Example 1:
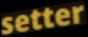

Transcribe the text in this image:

setter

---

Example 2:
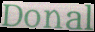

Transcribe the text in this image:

Donal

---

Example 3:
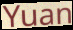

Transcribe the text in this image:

Yuan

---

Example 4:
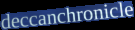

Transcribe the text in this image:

deccanchronicle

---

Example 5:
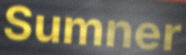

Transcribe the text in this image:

Sumner